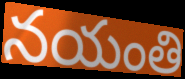
నయంతి